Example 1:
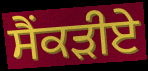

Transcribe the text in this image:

ਸੈਂਕੜੀਏ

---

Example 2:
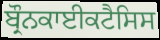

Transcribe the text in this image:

ਬ੍ਰੌਨਕਾਈਕਟੈਸਿਸ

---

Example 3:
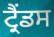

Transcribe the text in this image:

ਟ੍ਰੈਂਡਸ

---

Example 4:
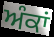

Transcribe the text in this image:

ਅੰਕਾਂ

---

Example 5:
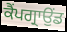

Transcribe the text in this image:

ਕੈਂਪਗ੍ਰਾਉਂਡ